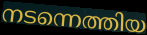
നടന്നെത്തിയ